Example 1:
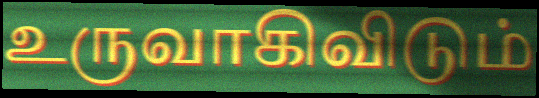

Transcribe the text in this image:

உருவாகிவிடும்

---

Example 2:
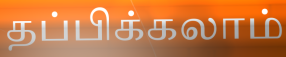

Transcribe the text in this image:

தப்பிக்கலாம்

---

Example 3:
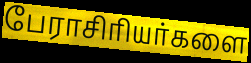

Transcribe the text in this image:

பேராசிரியர்களை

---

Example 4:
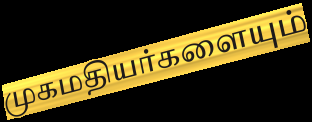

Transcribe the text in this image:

முகமதியர்களையும்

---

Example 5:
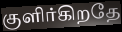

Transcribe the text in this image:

குளிர்கிறதே